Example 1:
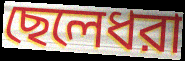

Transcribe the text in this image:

ছেলেধরা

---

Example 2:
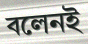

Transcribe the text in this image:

বলেনই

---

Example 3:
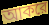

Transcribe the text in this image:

আকরে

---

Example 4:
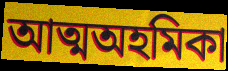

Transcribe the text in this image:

আত্মঅহমিকা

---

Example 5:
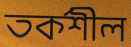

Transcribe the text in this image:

তর্কশীল